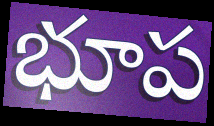
భూప